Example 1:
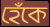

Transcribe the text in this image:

হেঁকে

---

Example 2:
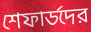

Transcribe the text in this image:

শেফার্ডদের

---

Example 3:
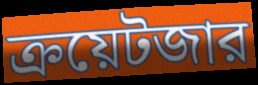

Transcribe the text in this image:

ক্রয়েটজার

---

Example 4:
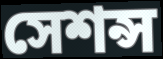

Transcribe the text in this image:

সেশন্স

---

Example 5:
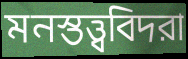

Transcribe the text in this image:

মনস্তত্ত্ববিদরা